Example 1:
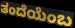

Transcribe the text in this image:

ತಂದೆಯೆಂಬ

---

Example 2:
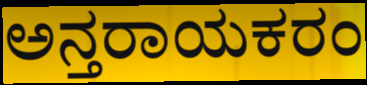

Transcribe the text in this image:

ಅನ್ತರಾಯಕರಂ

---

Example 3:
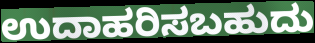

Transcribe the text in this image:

ಉದಾಹರಿಸಬಹುದು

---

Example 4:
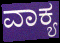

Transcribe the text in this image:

ವಾಕ್ಯ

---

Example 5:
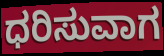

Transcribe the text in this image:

ಧರಿಸುವಾಗ